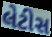
લેટીસ